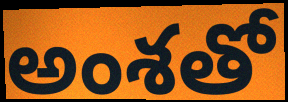
అంశతో